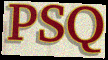
PSQ